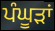
ਪੰਘੂੜਾਂ